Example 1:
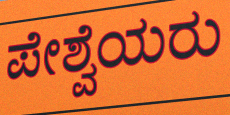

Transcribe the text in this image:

ಪೇಶ್ವೆಯರು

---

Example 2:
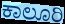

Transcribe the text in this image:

ಕಾಲೂರಿ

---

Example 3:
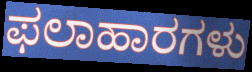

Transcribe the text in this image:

ಫಲಾಹಾರಗಳು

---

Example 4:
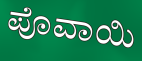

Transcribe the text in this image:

ಪೊವಾಯಿ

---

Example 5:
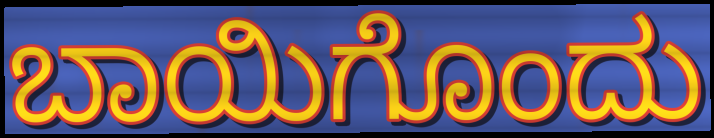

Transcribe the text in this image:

ಬಾಯಿಗೊಂದು